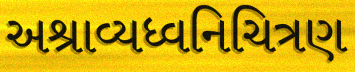
અશ્રાવ્યધ્વનિચિત્રણ